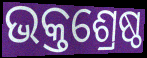
ଭକ୍ତଶ୍ରେଷ୍ଠ